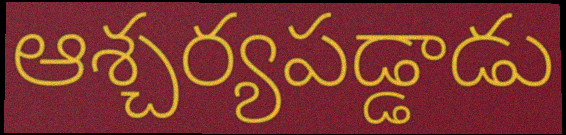
ఆశ్చర్యపడ్డాడు